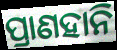
ପ୍ରାଣହାନି